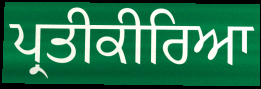
ਪ੍ਰਤੀਕੀਰਿਆ